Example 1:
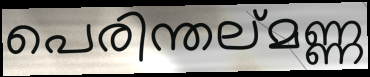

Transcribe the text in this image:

പെരിന്തല്മണ്ണ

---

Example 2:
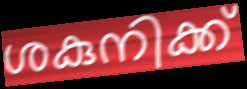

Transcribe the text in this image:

ശകുനിക്ക്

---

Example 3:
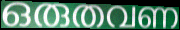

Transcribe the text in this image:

ഒരുതവണ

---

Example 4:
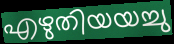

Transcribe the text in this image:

എഴുതിയയച്ചു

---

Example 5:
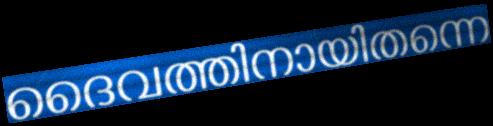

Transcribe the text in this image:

ദൈവത്തിനായിതന്നെ